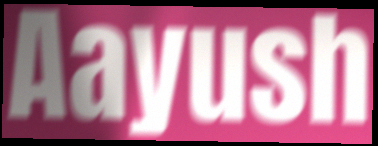
Aayush